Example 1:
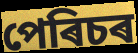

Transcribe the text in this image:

পেৰিচৰ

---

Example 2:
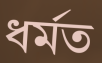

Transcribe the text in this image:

ধৰ্মত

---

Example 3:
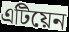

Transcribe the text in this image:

এটিয়েন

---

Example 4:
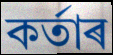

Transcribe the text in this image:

কৰ্তাৰ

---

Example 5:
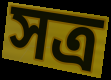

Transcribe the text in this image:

সত্ৰ